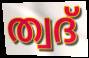
ത്വദ്